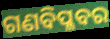
ଗଣବିପ୍ଳବର